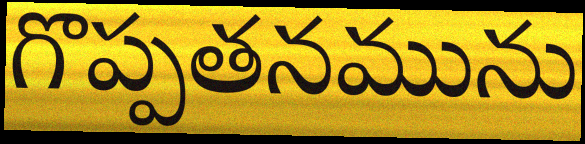
గొప్పతనమును